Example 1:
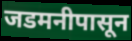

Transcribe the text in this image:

जडमनीपासून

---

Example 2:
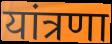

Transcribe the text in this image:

यांत्रणा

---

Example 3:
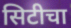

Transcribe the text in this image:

सिटीचा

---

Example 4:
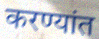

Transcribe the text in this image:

करण्यांत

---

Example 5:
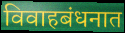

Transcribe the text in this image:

विवाहबंधनात